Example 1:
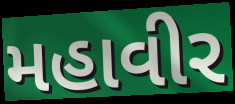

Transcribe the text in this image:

મહાવીર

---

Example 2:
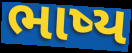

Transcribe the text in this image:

ભાષ્ય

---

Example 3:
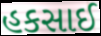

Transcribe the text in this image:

હકસાઈ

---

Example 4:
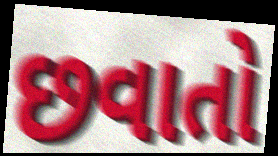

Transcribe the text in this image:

છવાતો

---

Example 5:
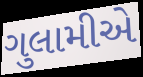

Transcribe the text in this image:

ગુલામીએ